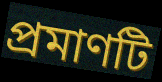
প্ৰমাণটি